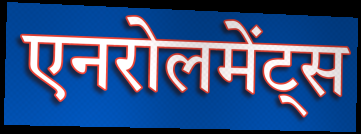
एनरोलमेंट्स